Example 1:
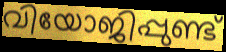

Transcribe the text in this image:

വിയോജിപ്പുണ്ട്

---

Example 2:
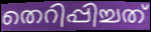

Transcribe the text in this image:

തെറിപ്പിച്ചത്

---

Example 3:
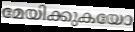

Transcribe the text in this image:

മേയിക്കുകയോ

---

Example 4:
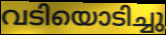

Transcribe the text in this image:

വടിയൊടിച്ചു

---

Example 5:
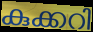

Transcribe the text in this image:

കുക്കറി